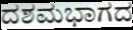
ದಶಮಭಾಗದ